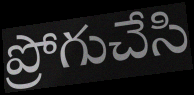
ప్రోగుచేసి